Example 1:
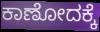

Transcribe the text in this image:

ಕಾಣೋದಕ್ಕೆ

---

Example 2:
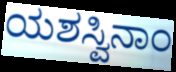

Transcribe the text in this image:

ಯಶಸ್ವಿನಾಂ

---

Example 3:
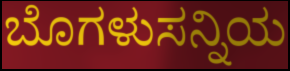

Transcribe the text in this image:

ಬೊಗಳುಸನ್ನಿಯ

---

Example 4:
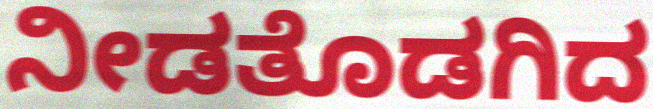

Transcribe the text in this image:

ನೀಡತೊಡಗಿದ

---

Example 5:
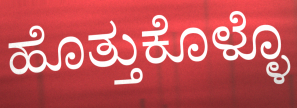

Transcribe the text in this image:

ಹೊತ್ತುಕೊಳ್ಳೊ